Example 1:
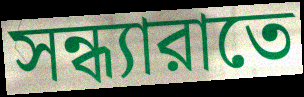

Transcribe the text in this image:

সন্ধ্যারাতে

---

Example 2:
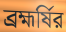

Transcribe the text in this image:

ব্রহ্মর্ষির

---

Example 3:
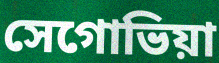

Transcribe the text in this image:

সেগোভিয়া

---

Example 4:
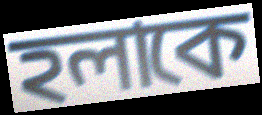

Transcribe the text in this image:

হলাকে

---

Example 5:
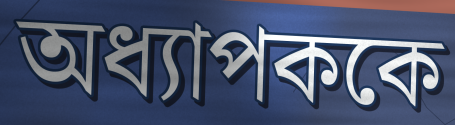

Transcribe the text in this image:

অধ্যাপককে